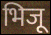
भिजू